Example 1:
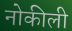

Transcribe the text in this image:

नोकीली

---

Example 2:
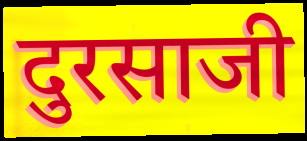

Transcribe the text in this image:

दुरसाजी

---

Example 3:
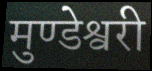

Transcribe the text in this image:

मुण्डेश्वरी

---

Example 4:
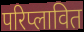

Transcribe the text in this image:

परिप्लावित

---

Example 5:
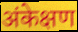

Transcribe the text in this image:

अंकेक्षण